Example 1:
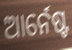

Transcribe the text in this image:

ଆର୍ନେଷ୍ଟ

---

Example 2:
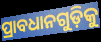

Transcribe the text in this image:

ପ୍ରାବଧାନଗୁଡ଼ିକୁ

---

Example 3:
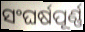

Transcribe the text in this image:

ସଂଘର୍ଷପୂର୍ଣ୍ଣ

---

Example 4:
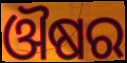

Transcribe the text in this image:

ଔଷର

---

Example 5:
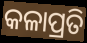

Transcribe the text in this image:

କଳାପ୍ରତି